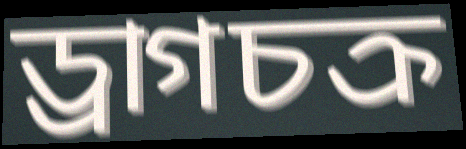
ড্রাগচক্র